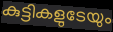
കുട്ടികളുടേയും